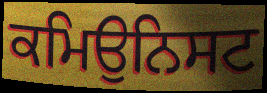
ਕਮਿਉਨਿਸਟ